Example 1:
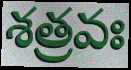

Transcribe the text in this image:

శత్రవః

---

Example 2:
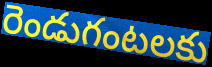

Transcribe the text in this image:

రెండుగంటలకు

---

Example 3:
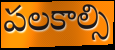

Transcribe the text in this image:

పలకాల్సి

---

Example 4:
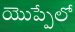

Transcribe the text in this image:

యొప్పేలో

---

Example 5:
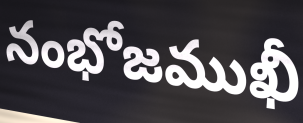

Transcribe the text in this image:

నంభోజముఖీ